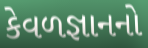
કેવળજ્ઞાનનો